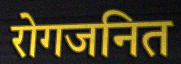
रोगजनित